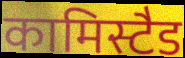
कामिस्टैड